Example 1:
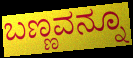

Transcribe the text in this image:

ಬಣ್ಣವನ್ನೂ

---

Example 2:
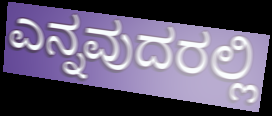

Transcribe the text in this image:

ಎನ್ನವುದರಲ್ಲಿ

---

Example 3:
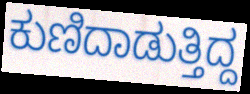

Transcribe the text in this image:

ಕುಣಿದಾಡುತ್ತಿದ್ದ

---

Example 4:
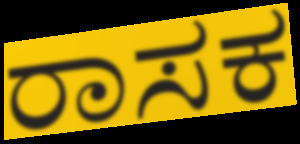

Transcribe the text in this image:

ರಾಸಕ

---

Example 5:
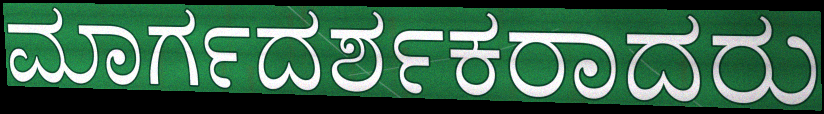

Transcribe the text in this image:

ಮಾರ್ಗದರ್ಶಕರಾದರು